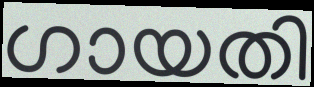
ഗായതി